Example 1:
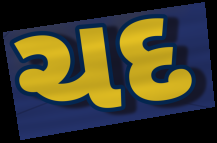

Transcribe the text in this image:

ચદ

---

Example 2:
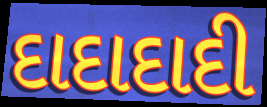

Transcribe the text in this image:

દાદાદાદી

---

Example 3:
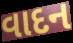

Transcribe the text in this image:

વાદન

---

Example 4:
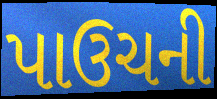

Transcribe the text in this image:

પાઉચની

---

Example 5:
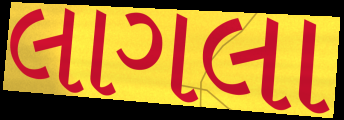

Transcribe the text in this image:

લાગલા